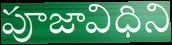
పూజావిధిని